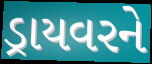
ડ્રાયવરને